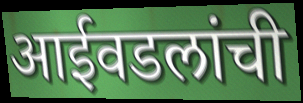
आईवडलांची